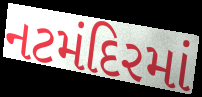
નટમંદિરમાં